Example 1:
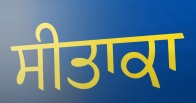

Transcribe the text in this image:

ਸੀਤਾਕਾ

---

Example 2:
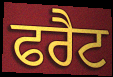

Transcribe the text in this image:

ਫਰੈਟ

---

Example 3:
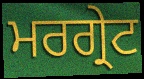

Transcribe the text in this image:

ਮਰਗ੍ਰੇਟ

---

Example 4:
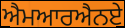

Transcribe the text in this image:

ਐਮਆਰਐਨਏ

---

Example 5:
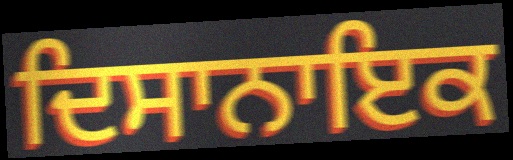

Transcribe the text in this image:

ਦਿਸਾਨਾਇਕ